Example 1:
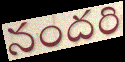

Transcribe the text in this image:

నందరి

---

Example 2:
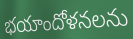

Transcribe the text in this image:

భయాందోళనలను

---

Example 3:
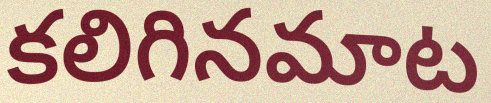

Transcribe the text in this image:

కలిగినమాట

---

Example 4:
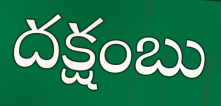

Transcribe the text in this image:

దక్షంబు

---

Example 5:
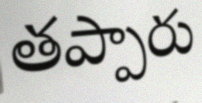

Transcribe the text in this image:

తప్పారు